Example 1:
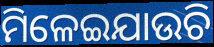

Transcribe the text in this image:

ମିଳେଇଯାଉଚି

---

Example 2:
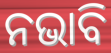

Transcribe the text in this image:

ନଭାବି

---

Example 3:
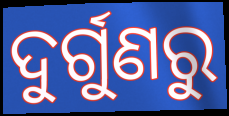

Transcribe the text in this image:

ଦୁର୍ଗୁଣରୁ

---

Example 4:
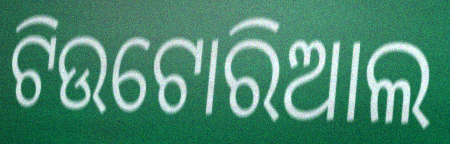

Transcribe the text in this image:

ଟିଉଟୋରିଆଲ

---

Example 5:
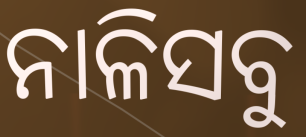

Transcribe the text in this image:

ନାଳିସବୁ